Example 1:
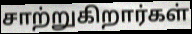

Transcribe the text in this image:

சாற்றுகிறார்கள்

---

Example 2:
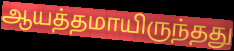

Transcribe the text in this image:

ஆயத்தமாயிருந்தது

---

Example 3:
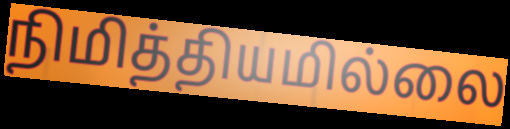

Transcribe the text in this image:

நிமித்தியமில்லை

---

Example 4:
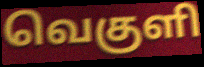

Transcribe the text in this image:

வெகுளி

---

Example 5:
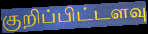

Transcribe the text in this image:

குறிப்பிட்டளவு